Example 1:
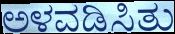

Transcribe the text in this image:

ಅಳವಡಿಸಿತು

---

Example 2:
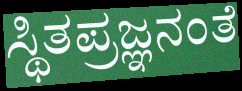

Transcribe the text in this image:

ಸ್ಥಿತಪ್ರಜ್ಞನಂತೆ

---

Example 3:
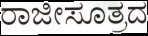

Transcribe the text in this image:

ರಾಜೀಸೂತ್ರದ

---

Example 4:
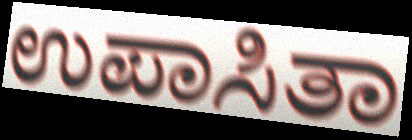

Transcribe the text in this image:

ಉಪಾಸಿತಾ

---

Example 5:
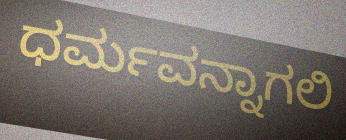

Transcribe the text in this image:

ಧರ್ಮವನ್ನಾಗಲಿ